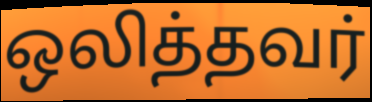
ஒலித்தவர்